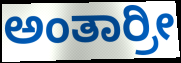
ಅಂತಾರ್ರೀ